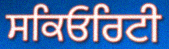
ਸਕਿਓਰਿਟੀ